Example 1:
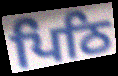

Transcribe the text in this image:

ਪਿਠਿ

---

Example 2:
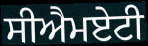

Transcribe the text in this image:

ਸੀਐਮਏਟੀ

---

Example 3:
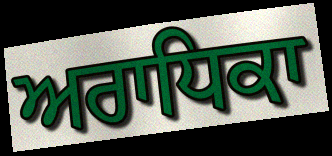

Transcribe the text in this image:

ਅਰਾਧਿਕਾ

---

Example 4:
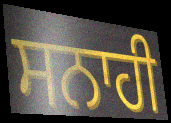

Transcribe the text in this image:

ਸਨਾਹੀ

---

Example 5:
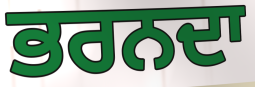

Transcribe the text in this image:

ਭਰਨਦਾ